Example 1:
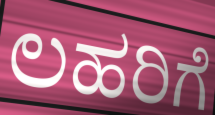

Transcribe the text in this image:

ಲಹರಿಗೆ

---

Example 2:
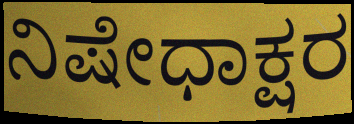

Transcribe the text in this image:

ನಿಷೇಧಾಕ್ಷರ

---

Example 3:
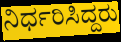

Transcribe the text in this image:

ನಿರ್ಧರಿಸಿದ್ದರು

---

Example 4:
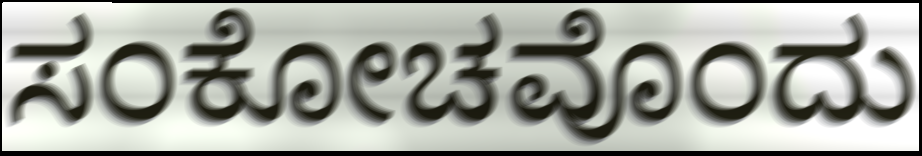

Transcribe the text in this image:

ಸಂಕೋಚವೊಂದು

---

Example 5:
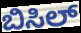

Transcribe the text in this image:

ಬಿಸಿಲ್